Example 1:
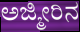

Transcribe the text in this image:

ಅಜ್ಮೀರಿನ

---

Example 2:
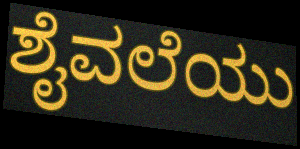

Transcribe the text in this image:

ಶೈವಲೆಯು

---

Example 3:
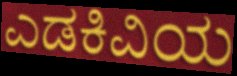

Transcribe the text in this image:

ಎಡಕಿವಿಯ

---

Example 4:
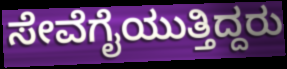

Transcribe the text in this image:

ಸೇವೆಗೈಯುತ್ತಿದ್ದರು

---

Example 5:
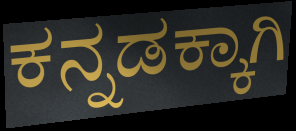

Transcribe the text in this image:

ಕನ್ನಡಕ್ಕಾಗಿ